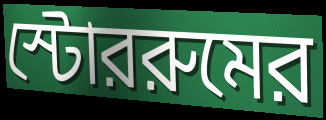
স্টোররুমের